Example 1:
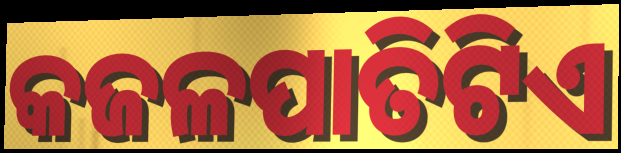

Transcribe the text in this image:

କଜଳପାତିଟିଏ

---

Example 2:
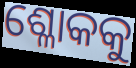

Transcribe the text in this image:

ଶ୍ଳୋକକୁ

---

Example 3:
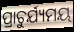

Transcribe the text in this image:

ପ୍ରାଚୁର୍ଯ୍ୟମୟ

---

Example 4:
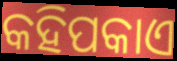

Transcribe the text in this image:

କହିପକାଏ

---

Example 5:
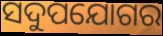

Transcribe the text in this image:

ସଦୁପଯୋଗର